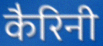
कैरिनी